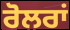
ਰੋਲਰਾਂ